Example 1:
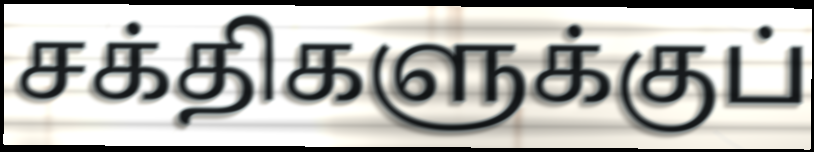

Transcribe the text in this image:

சக்திகளுக்குப்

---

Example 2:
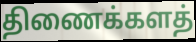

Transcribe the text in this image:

திணைக்களத்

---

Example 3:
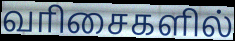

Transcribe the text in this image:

வரிசைகளில்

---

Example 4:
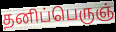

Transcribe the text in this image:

தனிப்பெருஞ்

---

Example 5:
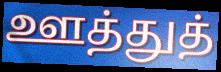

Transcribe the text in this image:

ஊத்துத்